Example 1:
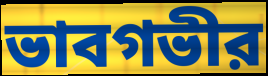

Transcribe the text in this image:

ভাবগভীর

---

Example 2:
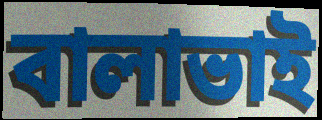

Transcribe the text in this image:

বালাভাই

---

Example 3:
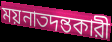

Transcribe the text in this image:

ময়নাতদন্তকারী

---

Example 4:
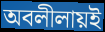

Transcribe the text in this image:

অবলীলায়ই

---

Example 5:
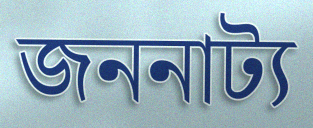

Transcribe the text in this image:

জননাট্য